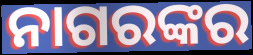
ନାଗରଙ୍କର